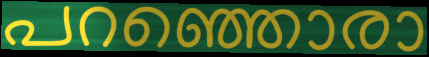
പറഞ്ഞൊരാ